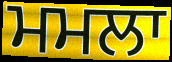
ਮਮਲਾ